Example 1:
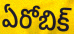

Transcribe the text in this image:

ఏరోబిక్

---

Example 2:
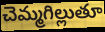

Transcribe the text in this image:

చెమ్మగిల్లుతూ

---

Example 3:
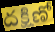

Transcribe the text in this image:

దక్షిణో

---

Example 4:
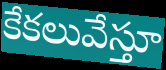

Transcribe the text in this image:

కేకలువేస్తూ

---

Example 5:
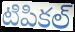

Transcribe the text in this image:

టిపికల్